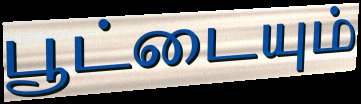
பூட்டையும்